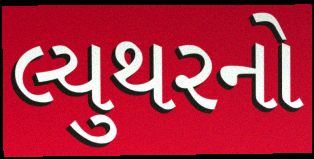
લ્યુથરનો